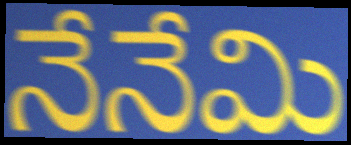
నేనేమి